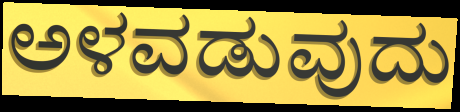
ಅಳವಡುವುದು